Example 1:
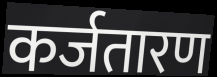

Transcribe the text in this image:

कर्जतारण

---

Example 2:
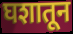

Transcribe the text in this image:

घशातून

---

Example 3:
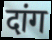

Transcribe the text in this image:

दांग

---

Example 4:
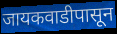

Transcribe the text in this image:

जायकवाडीपासून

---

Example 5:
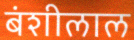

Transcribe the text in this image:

बंशीलाल